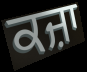
ਕਜ਼ਾ